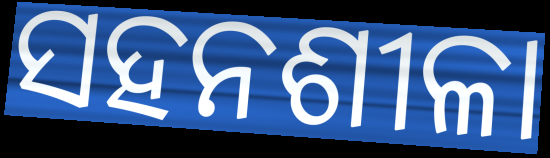
ସହନଶୀଳା